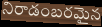
నిరాడంబరమైన